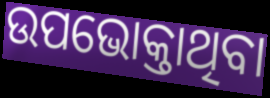
ଉପଭୋକ୍ତାଥିବା